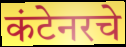
कंटेनरचे